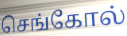
செங்கோல்